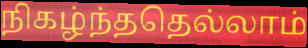
நிகழ்ந்ததெல்லாம்